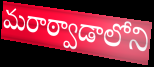
మరాఠ్వాడాలోని